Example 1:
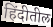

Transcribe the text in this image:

हिंदीतील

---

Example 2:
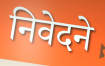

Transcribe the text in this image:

निवेदने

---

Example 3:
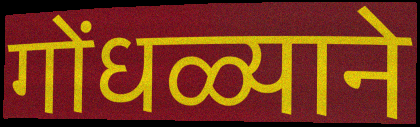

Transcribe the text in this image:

गोंधळ्याने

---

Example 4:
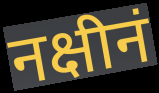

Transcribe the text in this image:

नक्षीनं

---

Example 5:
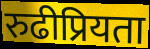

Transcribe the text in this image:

रुढीप्रियता